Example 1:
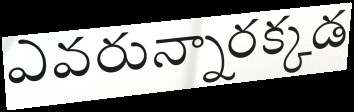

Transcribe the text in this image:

ఎవరున్నారక్కడ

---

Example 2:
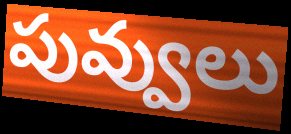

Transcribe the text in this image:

పువ్వులు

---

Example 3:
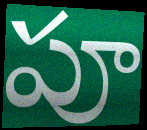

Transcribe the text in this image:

పూ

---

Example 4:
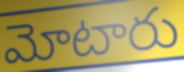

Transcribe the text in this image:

మోటారు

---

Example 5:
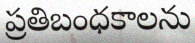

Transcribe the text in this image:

ప్రతిబంధకాలను